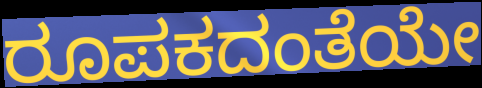
ರೂಪಕದಂತೆಯೇ